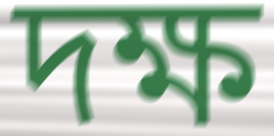
দক্ষ